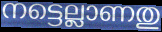
നട്ടെല്ലാണതു